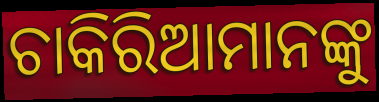
ଚାକିରିଆମାନଙ୍କୁ